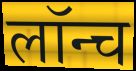
लॉन्च